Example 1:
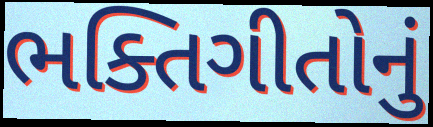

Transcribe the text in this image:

ભક્તિગીતોનું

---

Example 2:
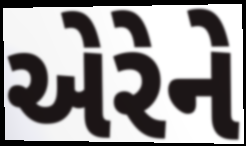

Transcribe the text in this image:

એરેને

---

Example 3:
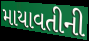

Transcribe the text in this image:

માયાવતીની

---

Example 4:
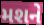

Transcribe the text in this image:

મશને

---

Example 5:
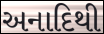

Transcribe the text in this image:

અનાદિથી